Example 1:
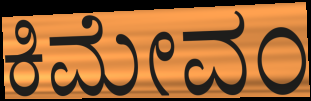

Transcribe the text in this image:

ಕಿಮೇವಂ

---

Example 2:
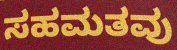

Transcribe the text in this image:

ಸಹಮತವು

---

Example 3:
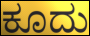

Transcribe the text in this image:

ಕೂದು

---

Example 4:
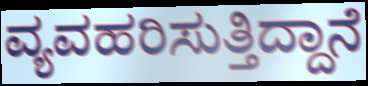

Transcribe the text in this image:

ವ್ಯವಹರಿಸುತ್ತಿದ್ದಾನೆ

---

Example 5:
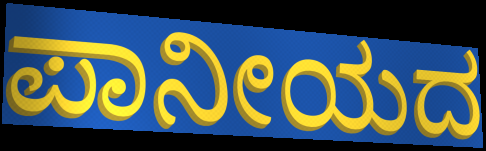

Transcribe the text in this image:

ಪಾನೀಯದ